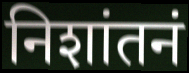
निशांतनं